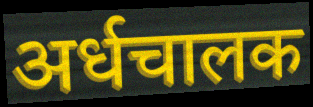
अर्धचालक